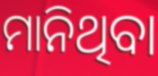
ମାନିଥିବା